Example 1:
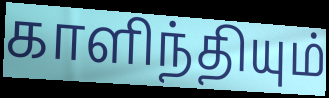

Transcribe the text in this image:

காளிந்தியும்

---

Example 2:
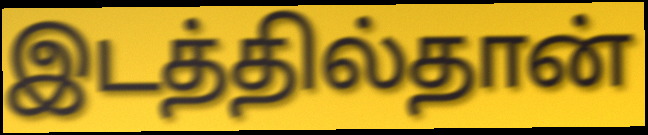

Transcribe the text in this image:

இடத்தில்தான்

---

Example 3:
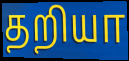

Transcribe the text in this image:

தறியா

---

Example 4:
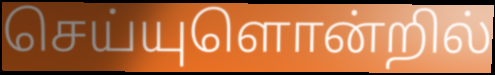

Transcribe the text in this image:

செய்யுளொன்றில்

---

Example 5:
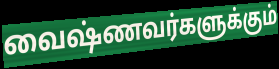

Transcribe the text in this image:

வைஷ்ணவர்களுக்கும்